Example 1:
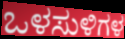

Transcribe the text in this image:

ಒಳಸುಳಿಗಳ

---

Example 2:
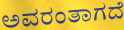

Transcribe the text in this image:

ಅವರಂತಾಗದೆ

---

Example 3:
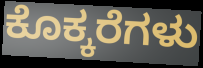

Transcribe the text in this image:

ಕೊಕ್ಕರೆಗಳು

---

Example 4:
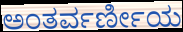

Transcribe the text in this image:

ಅಂತರ್ವರ್ಣೀಯ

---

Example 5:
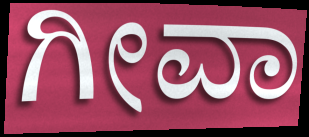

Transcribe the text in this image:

ಗೀವಾ